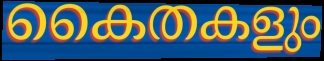
കൈതകളും